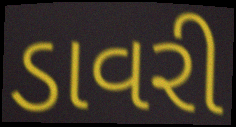
ડાવરી